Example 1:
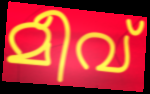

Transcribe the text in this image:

മീവ്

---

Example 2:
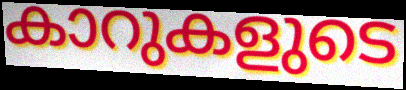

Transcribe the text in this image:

കാറുകളുടെ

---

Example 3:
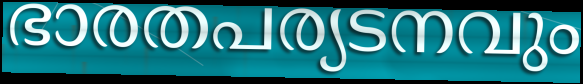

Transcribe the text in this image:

ഭാരതപര്യടനവും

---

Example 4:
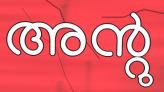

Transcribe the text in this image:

അന്റു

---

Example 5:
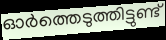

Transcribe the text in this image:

ഓർത്തെടുത്തിട്ടുണ്ട്